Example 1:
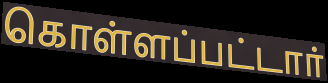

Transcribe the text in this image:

கொள்ளப்பட்டார்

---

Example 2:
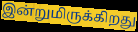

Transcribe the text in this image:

இன்றுமிருக்கிறது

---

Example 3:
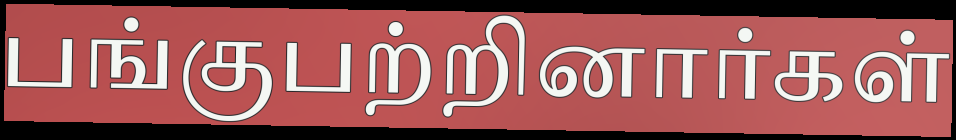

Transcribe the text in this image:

பங்குபற்றினார்கள்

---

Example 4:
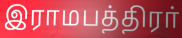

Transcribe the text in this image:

இராமபத்திரர்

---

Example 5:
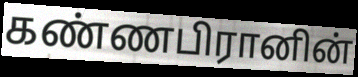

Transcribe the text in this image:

கண்ணபிரானின்